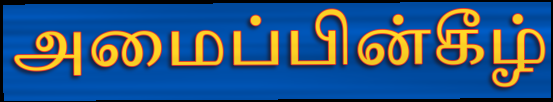
அமைப்பின்கீழ்